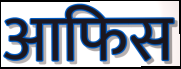
आफिस